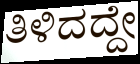
ತಿಳಿದದ್ದೇ